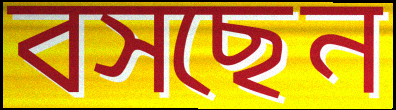
বসছেন